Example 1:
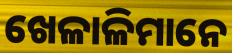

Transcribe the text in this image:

ଖେଳାଳିମାନେ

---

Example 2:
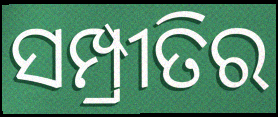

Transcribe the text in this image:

ସମ୍ପ୍ରୀତିର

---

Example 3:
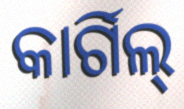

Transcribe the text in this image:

କାର୍ଗିଲ୍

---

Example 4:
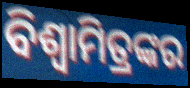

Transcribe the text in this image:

ବିଶ୍ୱାମିତ୍ରଙ୍କର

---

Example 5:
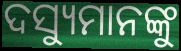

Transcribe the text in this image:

ଦସ୍ୟୁମାନଙ୍କୁ